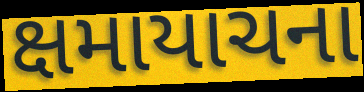
ક્ષમાયાચના